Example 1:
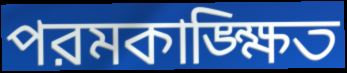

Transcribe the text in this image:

পরমকাঙ্ক্ষিত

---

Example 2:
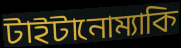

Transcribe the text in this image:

টাইটানোম্যাকি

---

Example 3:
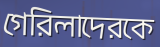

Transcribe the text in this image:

গেরিলাদেরকে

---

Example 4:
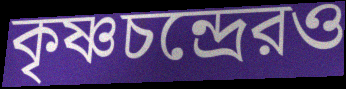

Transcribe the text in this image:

কৃষ্ণচন্দ্রেরও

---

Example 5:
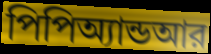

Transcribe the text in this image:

পিপিঅ্যান্ডআর